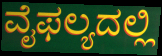
ವೈಫಲ್ಯದಲ್ಲಿ